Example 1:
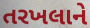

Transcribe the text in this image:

તરખલાને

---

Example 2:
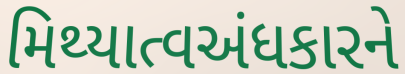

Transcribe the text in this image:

મિથ્યાત્વઅંધકારને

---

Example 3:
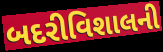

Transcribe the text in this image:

બદરીવિશાલની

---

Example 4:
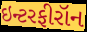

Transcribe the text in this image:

ઇન્ટરફીરૉન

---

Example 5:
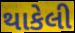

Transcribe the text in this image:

થાકેલી